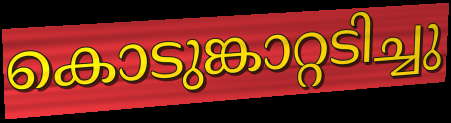
കൊടുങ്കാറ്റടിച്ചു